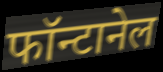
फॉन्टानेल